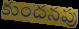
కుందనపు